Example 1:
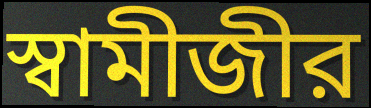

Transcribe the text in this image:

স্বামীজীর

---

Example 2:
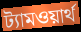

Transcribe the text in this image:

ট্যামওয়ার্থ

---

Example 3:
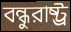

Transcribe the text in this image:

বন্ধুরাষ্ট্র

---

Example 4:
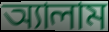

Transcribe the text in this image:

অ্যালাম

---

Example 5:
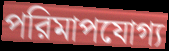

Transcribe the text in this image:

পরিমাপযোগ্য